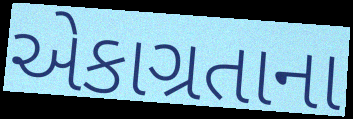
એકાગ્રતાના